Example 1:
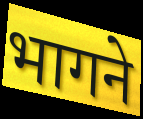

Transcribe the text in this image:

भागने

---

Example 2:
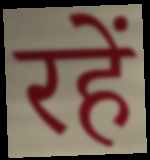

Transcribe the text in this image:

रहें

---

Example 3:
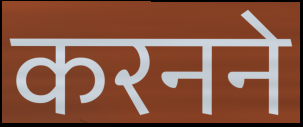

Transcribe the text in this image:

करनने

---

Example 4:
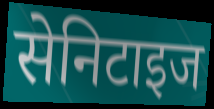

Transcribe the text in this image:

सेनिटाइज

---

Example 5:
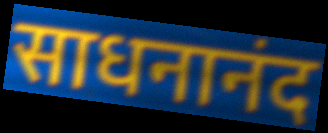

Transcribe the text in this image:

साधनानंद